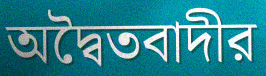
অদ্বৈতবাদীর